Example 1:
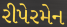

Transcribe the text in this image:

રીપેરમેન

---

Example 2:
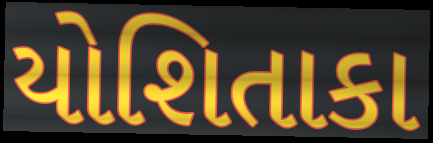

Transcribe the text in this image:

યોશિતાકા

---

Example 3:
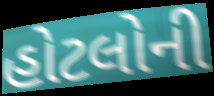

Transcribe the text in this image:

હોટલોની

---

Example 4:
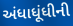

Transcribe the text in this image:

અંધાધૂંધીની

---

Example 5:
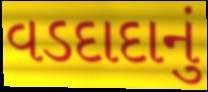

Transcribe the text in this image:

વડદાદાનું